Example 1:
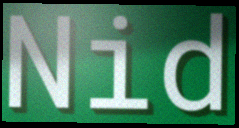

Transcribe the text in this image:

Nid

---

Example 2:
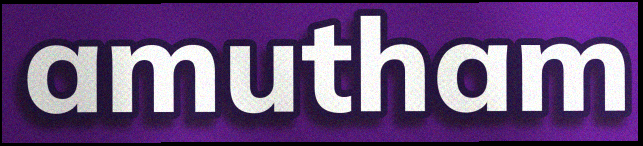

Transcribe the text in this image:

amutham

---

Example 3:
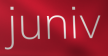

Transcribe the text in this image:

juniv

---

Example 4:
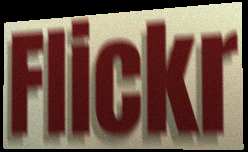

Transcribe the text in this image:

Flickr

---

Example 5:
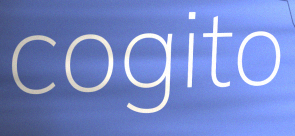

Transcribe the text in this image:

cogito